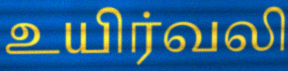
உயிர்வலி